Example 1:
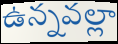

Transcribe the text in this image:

ఉన్నవల్లా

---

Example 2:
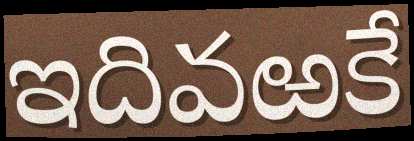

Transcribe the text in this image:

ఇదివఱకే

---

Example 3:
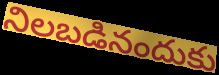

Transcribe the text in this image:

నిలబడినందుకు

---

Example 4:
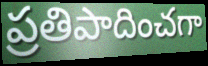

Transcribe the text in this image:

ప్రతిపాదించగా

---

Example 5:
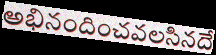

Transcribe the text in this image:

అభినందించవలసినదే